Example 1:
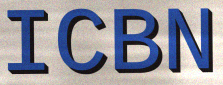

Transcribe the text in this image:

ICBN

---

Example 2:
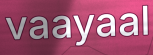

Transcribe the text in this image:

vaayaal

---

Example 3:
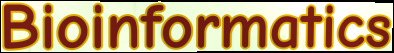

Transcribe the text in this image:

Bioinformatics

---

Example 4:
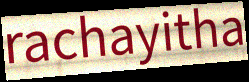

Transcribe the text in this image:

rachayitha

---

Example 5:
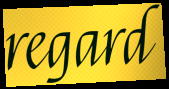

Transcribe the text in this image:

regard